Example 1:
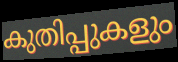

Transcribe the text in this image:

കുതിപ്പുകളും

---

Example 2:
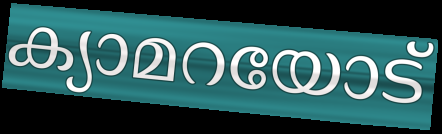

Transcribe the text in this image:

ക്യാമറയോട്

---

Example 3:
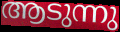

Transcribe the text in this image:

ആടുന്നു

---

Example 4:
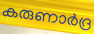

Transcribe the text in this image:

കരുണാർദ്ര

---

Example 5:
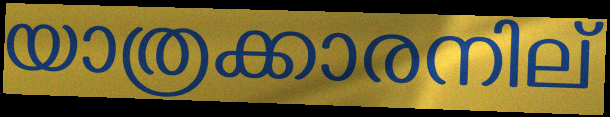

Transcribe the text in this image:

യാത്രക്കാരനില്